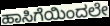
ಹಾಸಿಗೆಯಿಂದಲೇ